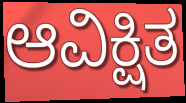
ಆವಿಕ್ಷಿತ